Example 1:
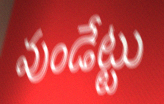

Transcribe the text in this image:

వుండేట్టు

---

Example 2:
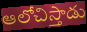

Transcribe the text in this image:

ఆలోచిస్తాడు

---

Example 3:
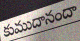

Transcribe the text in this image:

కుముదానందా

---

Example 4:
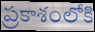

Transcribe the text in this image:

ప్రకాశంలోకి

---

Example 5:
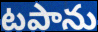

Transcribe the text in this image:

టపాను